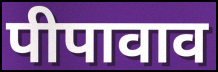
पीपावाव